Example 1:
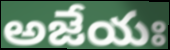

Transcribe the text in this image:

అజేయః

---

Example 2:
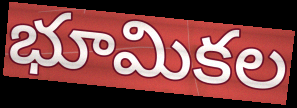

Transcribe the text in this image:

భూమికల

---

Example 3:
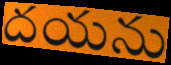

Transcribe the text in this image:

దయను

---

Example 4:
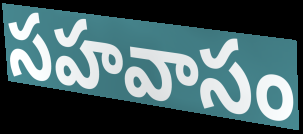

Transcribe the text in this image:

సహవాసం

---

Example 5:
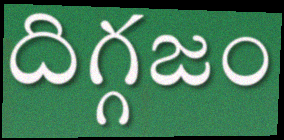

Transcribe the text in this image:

దిగ్గజం